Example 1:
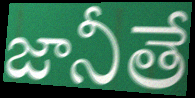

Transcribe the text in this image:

జానీతే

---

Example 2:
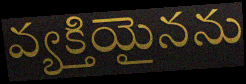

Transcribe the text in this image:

వ్యక్తియైనను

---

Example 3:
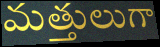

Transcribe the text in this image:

మత్తులుగా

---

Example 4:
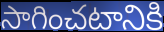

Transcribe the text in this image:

సాగించటానికి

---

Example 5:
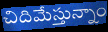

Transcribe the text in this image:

చిదిమేస్తున్నాం